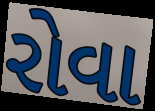
રોવા